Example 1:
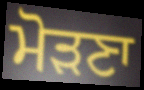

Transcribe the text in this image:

ਮੋੜਣਾ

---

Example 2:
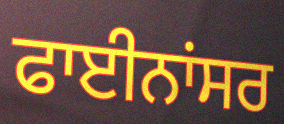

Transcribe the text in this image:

ਫਾਈਨਾਂਸਰ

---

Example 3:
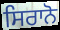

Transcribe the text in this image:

ਸਿਰਾਨੋ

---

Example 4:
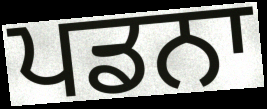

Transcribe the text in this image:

ਪਡਨਾ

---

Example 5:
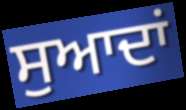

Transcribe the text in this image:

ਸੁਆਦਾਂ